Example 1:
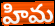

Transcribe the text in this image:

హిమ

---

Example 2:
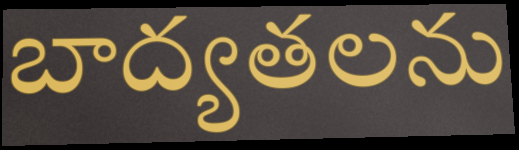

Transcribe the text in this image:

బాద్యతలను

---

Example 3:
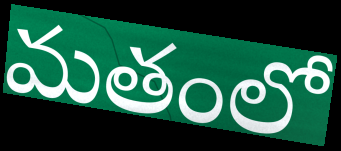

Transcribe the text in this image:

మతంలో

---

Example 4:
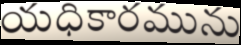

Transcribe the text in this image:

యధికారమును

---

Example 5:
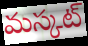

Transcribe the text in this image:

మస్కట్